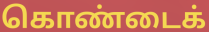
கொண்டைக்